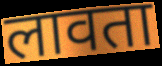
लावता